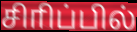
சிரிப்பில்